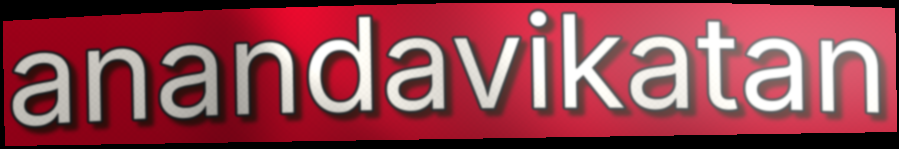
anandavikatan